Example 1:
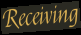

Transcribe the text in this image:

Receiving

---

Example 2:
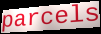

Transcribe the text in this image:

parcels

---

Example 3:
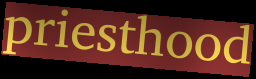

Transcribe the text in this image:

priesthood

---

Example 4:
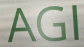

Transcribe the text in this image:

AGI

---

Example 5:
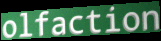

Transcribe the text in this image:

olfaction